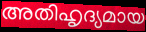
അതിഹൃദ്യമായ